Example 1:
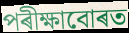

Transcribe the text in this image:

পৰীক্ষাবোৰত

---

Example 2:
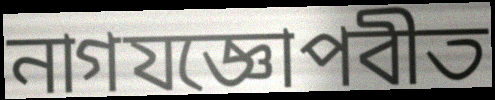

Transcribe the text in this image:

নাগযজ্ঞোপবীত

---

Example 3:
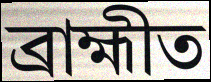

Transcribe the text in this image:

ব্ৰাহ্মীত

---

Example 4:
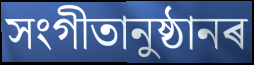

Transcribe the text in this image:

সংগীতানুষ্ঠানৰ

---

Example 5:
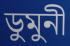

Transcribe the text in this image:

ডুমুনী